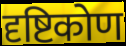
दृष्टिकोण